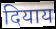
दियाय